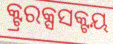
କ୍ଟ୍ରରକ୍ସସକ୍ଟୟ